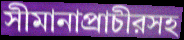
সীমানাপ্রাচীরসহ